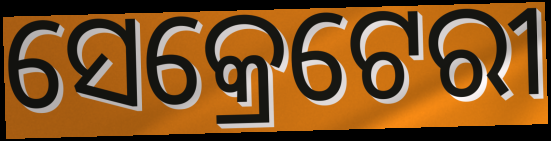
ସେକ୍ରେଟେରୀ